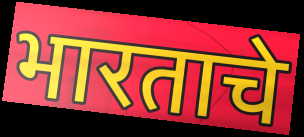
भारताचे